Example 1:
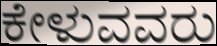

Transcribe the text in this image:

ಕೇಳುವವರು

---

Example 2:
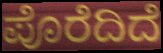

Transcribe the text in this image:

ಪೊರೆದಿದೆ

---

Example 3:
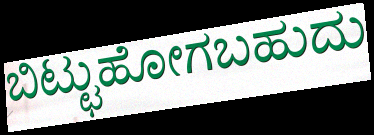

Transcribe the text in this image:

ಬಿಟ್ಟುಹೋಗಬಹುದು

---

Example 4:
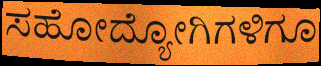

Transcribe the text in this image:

ಸಹೋದ್ಯೋಗಿಗಳಿಗೂ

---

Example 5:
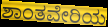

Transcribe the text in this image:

ಶಾಂತವೇರಿಯ